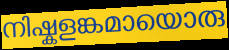
നിഷ്കളങ്കമായൊരു